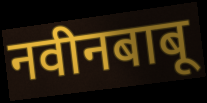
नवीनबाबू